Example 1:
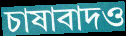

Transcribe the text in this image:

চাষাবাদও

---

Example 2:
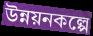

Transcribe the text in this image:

উন্নয়নকল্পে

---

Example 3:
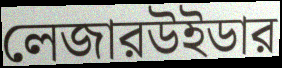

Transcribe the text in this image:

লেজারউইডার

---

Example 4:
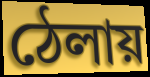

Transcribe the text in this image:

ঠেলায়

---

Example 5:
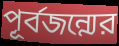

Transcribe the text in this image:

পূর্বজন্মের